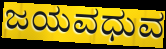
ಜಯವಧುವ